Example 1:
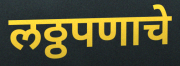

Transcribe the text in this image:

लठ्ठपणाचे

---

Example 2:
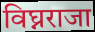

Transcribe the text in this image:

विघ्नराजा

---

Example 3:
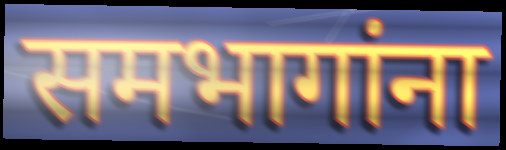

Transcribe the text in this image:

समभागांना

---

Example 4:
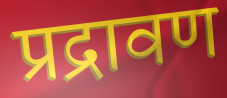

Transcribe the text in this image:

प्रद्रावण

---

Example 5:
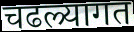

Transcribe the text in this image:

चढल्यागत